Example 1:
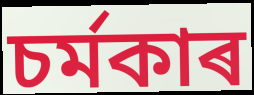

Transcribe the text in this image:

চৰ্মকাৰ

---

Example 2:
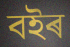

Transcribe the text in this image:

বইৰ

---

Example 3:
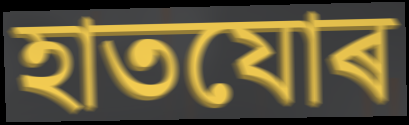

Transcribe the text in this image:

হাতযোৰ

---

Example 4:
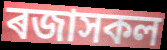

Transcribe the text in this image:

ৰজাসকল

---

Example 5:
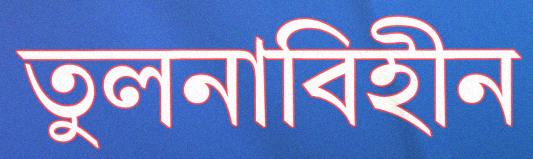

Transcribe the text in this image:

তুলনাবিহীন